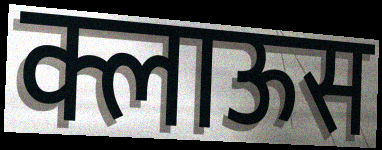
क्लाऊस